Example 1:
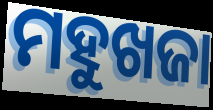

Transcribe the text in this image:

ମହୁଖଜା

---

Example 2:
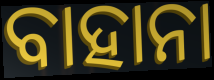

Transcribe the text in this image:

ବାହାନା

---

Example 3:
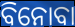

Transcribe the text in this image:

ବିନୋବା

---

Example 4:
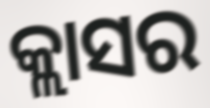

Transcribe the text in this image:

କ୍ଲାସର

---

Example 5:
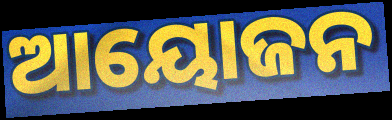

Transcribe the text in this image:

ଆୟୋଜନ